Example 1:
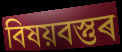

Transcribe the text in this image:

বিষয়বস্তুৰ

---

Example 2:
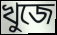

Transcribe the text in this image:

খুজে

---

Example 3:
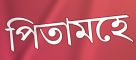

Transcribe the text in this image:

পিতামহে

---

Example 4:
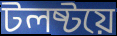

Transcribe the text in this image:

টলষ্টয়ে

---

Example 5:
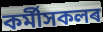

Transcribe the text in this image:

কৰ্মীসকলৰ